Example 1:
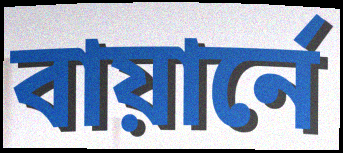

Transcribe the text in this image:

বায়ার্নে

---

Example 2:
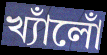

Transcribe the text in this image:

খ্যাঁলোঁ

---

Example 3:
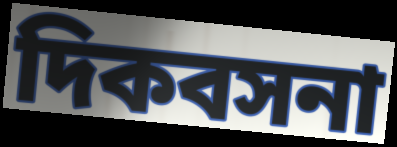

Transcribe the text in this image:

দিকবসনা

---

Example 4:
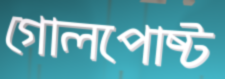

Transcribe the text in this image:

গোলপোষ্ট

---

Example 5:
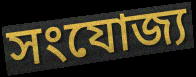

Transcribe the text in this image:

সংযোজ্য